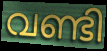
വണ്ടി